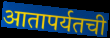
आतापर्यतची